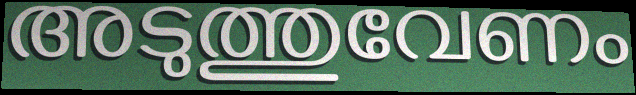
അടുത്തുവേണം